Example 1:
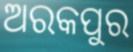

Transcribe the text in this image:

ଅରକପୁର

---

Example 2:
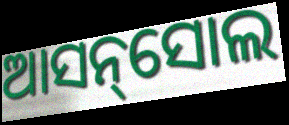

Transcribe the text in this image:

ଆସନ୍‌ସୋଲ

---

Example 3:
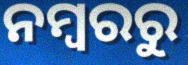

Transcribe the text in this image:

ନମ୍ୱରରୁ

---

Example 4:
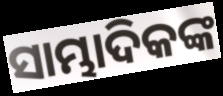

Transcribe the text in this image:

ସାମ୍ଭାଦିକଙ୍କ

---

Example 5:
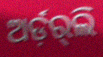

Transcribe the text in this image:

ଅର୍ଡ଼ର୍‌ଲି